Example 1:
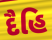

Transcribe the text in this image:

દૈહિ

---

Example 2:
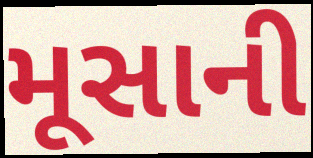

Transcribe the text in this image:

મૂસાની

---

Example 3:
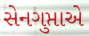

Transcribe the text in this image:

સેનગુપ્તાએ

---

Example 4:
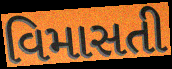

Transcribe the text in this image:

વિમાસતી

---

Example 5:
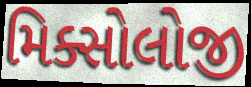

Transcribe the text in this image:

મિક્સોલોજી